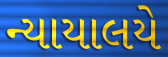
ન્યાયાલયે